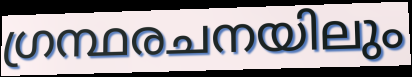
ഗ്രന്ഥരചനയിലും